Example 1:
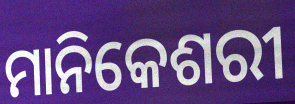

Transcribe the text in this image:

ମାନିକେଶରୀ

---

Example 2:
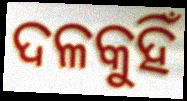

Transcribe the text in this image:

ଦଳକୁହିଁ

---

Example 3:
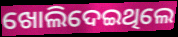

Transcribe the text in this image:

ଖୋଲିଦେଇଥିଲେ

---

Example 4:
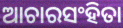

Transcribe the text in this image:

ଆଚାରସଂହିତା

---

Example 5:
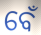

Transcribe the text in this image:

ବେଁ